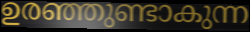
ഉരഞ്ഞുണ്ടാകുന്ന